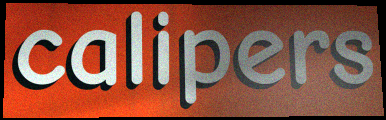
calipers